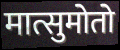
मात्सुमोतो